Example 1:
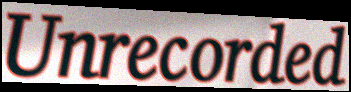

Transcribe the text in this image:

Unrecorded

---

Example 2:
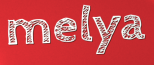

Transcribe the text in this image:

melya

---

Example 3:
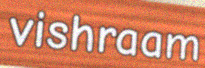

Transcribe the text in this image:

vishraam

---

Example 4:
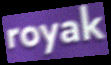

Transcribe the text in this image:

royak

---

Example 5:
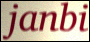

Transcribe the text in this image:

janbi